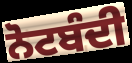
ਨੋਟਬੰਦੀ